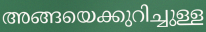
അങ്ങയെക്കുറിച്ചുള്ള